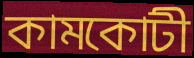
কামকোটী